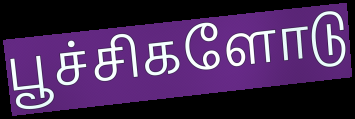
பூச்சிகளோடு